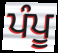
ਪੰਪੂ